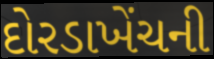
દોરડાખેંચની